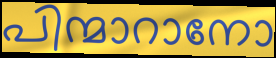
പിന്മാറാനോ